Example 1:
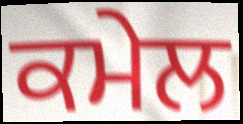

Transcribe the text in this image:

ਕਮੇਲ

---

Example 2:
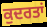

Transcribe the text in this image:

ਕੁਦਰਤਾਂ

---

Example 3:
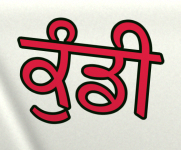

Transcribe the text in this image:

ਕੁੰਡੀ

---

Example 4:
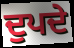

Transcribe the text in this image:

ਦੁਪਦੇ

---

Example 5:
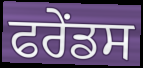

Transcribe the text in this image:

ਫਰੇਂਡਸ